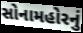
સોનામહોરનું